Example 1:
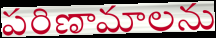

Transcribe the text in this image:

పరిణామాలను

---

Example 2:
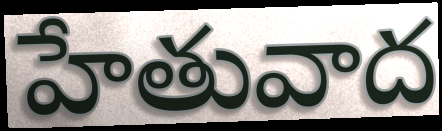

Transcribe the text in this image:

హేతువాద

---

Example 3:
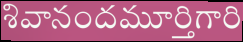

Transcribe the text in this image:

శివానందమూర్తిగారి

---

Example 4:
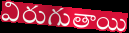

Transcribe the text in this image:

విరుగుతాయి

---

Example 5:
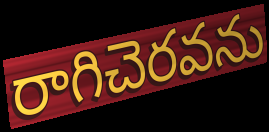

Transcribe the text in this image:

రాగిచెరవను